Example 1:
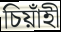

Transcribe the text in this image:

চিয়াঁহী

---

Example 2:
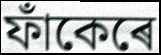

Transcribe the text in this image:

ফাঁকেৰে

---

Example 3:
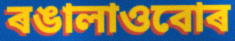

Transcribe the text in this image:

ৰঙালাওবোৰ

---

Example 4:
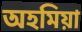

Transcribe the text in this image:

অহমিয়া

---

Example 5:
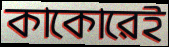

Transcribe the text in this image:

কাকোৱেই